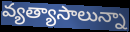
వ్యత్యాసాలున్నా